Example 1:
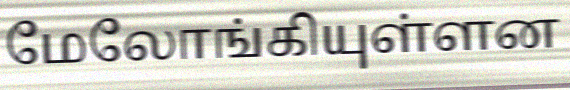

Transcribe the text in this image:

மேலோங்கியுள்ளன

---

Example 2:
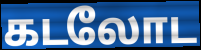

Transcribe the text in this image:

கடலோட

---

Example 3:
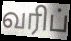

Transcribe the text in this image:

வரிப்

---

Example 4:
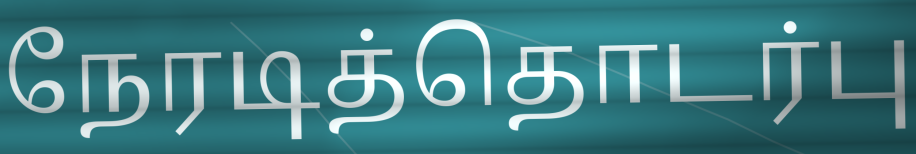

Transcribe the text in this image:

நேரடித்தொடர்பு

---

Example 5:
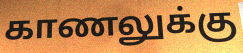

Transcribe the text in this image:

காணலுக்கு